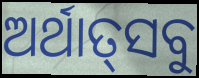
ଅର୍ଥାତ୍‌ସବୁ